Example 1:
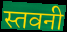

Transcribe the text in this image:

स्तवनी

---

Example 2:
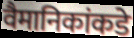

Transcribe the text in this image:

वैमानिकांकडे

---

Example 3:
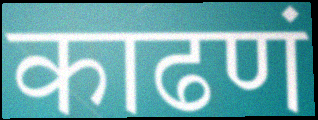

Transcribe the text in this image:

काढणं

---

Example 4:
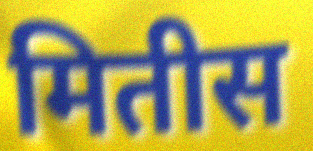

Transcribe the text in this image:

मितीस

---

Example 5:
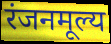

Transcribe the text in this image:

रंजनमूल्य